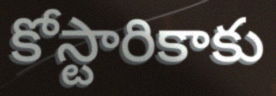
కోస్టారికాకు